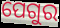
ପେଗୁର